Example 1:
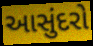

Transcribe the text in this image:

આસુંદરો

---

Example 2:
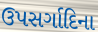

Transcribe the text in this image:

ઉપસર્ગાદિના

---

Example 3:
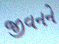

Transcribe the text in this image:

જીવનને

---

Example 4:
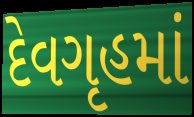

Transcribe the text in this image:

દેવગૃહમાં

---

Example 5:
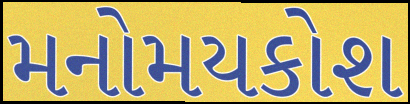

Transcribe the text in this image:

મનોમયકોશ